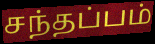
சந்தப்பம்